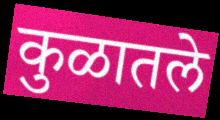
कुळातले